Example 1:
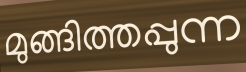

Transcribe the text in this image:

മുങ്ങിത്തപ്പുന്ന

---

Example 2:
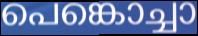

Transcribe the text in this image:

പെങ്കൊച്ചാ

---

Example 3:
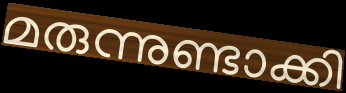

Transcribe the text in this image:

മരുന്നുണ്ടാക്കി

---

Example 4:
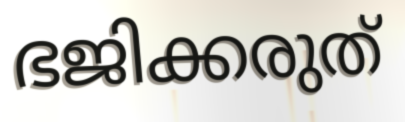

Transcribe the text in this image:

ഭജിക്കരുത്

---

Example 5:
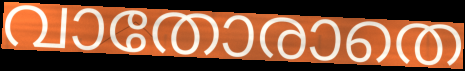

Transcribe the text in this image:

വാതോരാതെ